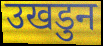
उखडुन